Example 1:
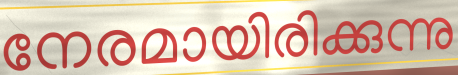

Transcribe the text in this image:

നേരമായിരിക്കുന്നു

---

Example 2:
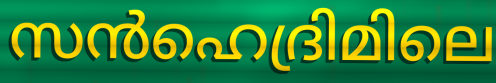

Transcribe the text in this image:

സൻഹെദ്രിമിലെ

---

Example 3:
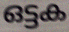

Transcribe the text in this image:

ഒട്ടക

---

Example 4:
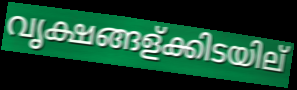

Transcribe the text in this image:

വൃക്ഷങ്ങള്ക്കിടയില്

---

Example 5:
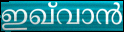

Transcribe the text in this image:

ഇഖ്‌വാൻ